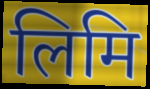
लिमि